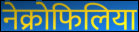
नेक्रोफिलिया